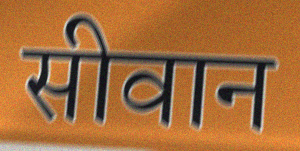
सीवान